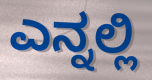
ಎನ್ನಲ್ಲಿ